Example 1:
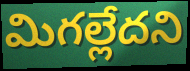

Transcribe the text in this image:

మిగల్లేదని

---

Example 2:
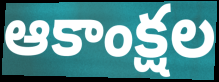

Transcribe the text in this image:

ఆకాంక్షల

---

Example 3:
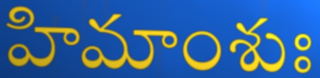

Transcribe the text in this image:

హిమాంశుః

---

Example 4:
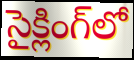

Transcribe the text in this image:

సైక్లింగ్‌లో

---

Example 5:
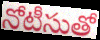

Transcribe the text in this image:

నోటీసుతో